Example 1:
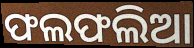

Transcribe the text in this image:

ଫଲଫଲିଆ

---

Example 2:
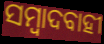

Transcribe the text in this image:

ସମ୍ବାଦବାହୀ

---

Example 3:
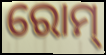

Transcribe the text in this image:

ରୋମ୍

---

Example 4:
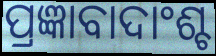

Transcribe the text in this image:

ପ୍ରଜ୍ଞାବାଦାଂଶ୍ଚ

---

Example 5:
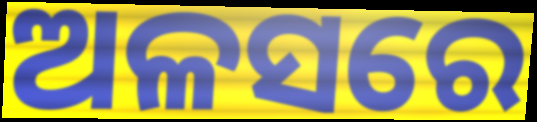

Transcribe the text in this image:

ଅଳସରେ